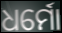
ଧର୍ମୋ